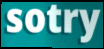
sotry